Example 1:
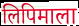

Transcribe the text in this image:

लिपिमाला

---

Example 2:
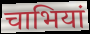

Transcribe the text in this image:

चाभियां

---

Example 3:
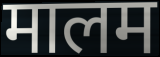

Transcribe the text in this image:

मालम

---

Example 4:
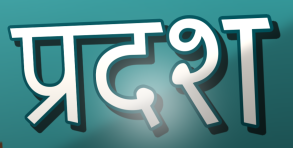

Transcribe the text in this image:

प्रदश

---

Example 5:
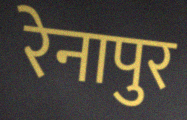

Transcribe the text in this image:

रेनापुर